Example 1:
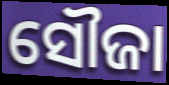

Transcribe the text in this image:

ସୌଜା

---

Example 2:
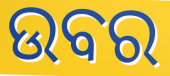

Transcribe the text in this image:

ଉବର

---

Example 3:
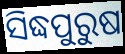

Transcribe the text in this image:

ସିଦ୍ଧପୁରୁଷ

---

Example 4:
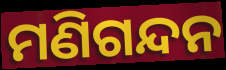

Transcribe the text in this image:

ମଣିଗନ୍ଦନ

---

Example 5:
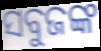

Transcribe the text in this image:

ସବୁଜଙ୍କ